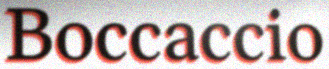
Boccaccio